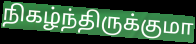
நிகழ்ந்திருக்குமா